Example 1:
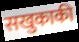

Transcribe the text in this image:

सखुकाकी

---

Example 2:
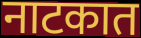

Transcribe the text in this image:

नाटकात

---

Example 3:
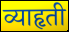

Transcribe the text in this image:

व्याहृती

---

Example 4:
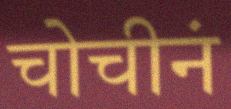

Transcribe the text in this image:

चोचीनं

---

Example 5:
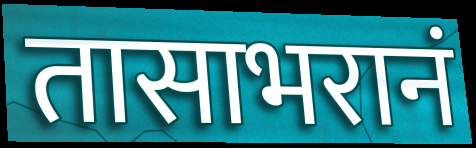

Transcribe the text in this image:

तासाभरानं